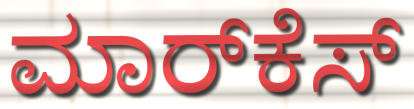
ಮಾರ್‌ಕೆಸ್